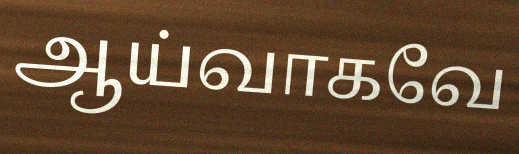
ஆய்வாகவே